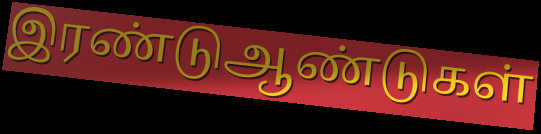
இரண்டுஆண்டுகள்